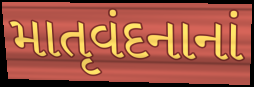
માતૃવંદનાનાં